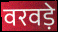
वरवड़े